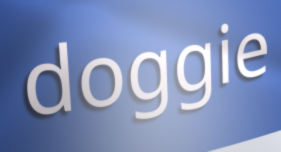
doggie